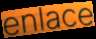
enlace